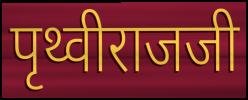
पृथ्वीराजजी